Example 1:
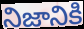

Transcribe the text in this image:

నిజానికి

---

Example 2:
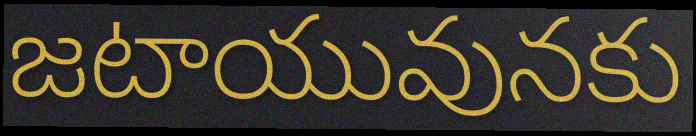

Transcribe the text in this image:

జటాయువునకు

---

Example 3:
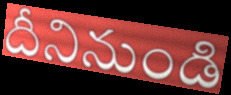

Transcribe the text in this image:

దీనినుండి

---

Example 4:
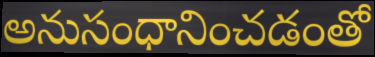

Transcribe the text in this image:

అనుసంధానించడంతో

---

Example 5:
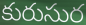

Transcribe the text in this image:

కురుసుర